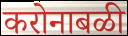
करोनाबळी